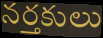
నర్తకులు